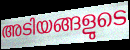
അടിയങ്ങളുടെ